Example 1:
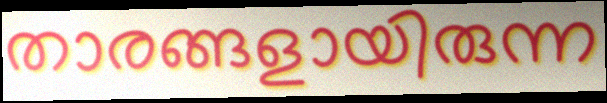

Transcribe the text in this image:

താരങ്ങളായിരുന്ന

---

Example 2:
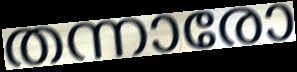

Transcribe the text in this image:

തന്നാരോ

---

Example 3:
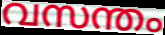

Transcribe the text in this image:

വസന്തം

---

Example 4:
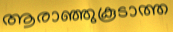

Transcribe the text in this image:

ആരാഞ്ഞുകൂടാത്ത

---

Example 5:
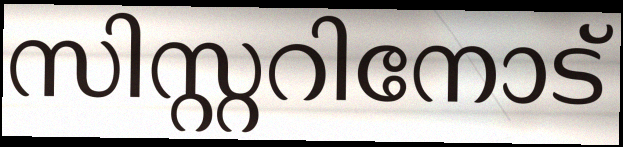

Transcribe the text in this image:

സിസ്റ്ററിനോട്